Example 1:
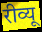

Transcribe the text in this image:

रीव्यू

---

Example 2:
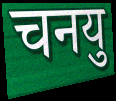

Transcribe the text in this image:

चनयु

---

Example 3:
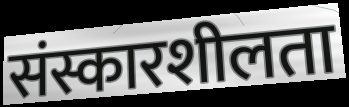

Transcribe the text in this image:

संस्कारशीलता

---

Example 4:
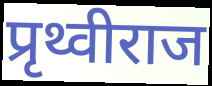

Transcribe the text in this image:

प्रृथ्वीराज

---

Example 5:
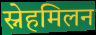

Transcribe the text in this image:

स्नेहमिलन